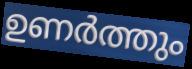
ഉണർത്തും